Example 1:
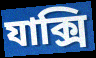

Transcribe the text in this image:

যাক্সি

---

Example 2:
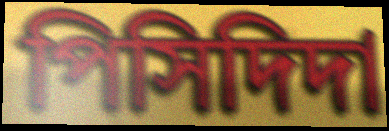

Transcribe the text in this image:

পিসিদিদা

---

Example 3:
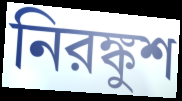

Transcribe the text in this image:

নিরঙ্কুশ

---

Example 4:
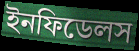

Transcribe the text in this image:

ইনফিডেলস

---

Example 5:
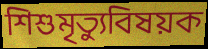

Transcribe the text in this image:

শিশুমৃত্যুবিষয়ক